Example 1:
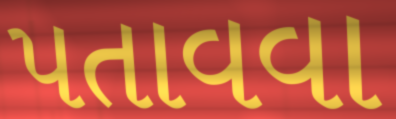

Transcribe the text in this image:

પતાવવા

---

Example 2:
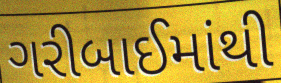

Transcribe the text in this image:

ગરીબાઈમાંથી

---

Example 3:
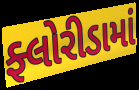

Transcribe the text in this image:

ફ્લોરીડામાં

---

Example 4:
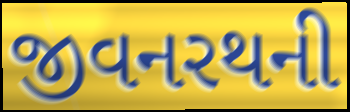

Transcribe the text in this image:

જીવનરથની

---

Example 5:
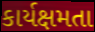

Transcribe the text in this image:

કાર્યક્ષમતા